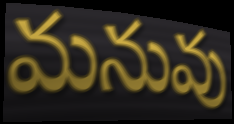
మనువు